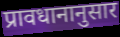
प्रावधानानुसार